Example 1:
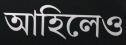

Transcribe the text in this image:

আহিলেও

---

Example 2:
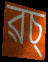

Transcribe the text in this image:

ৱচ্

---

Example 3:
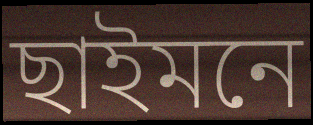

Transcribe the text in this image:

ছাইমনে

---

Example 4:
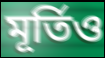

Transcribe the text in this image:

মূৰ্তিও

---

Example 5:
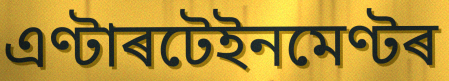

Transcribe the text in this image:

এণ্টাৰটেইনমেণ্টৰ